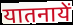
यातनायें